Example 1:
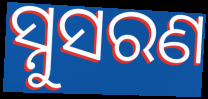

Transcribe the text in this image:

ସ୍ନୁସରଣ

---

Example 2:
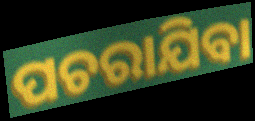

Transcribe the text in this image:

ପଚରାଯିବା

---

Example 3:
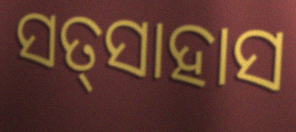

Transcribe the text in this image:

ସତ୍‌ସାହାସ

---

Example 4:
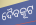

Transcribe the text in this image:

ଦୈବକୂଟ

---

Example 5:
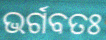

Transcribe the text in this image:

ଭର୍ଗବତଃ